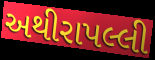
અથીરાપલ્લી